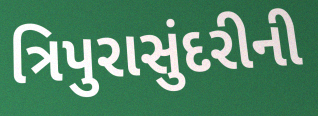
ત્રિપુરાસુંદરીની